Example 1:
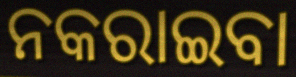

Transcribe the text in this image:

ନକରାଇବା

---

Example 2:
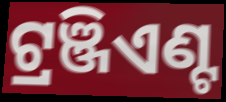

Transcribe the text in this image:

ଟ୍ରଞ୍ଜିଏଣ୍ଟ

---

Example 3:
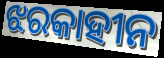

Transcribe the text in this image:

ଝରକାହୀନ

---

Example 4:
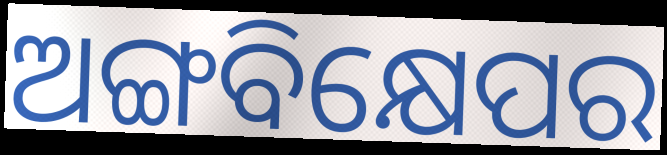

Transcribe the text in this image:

ଅଙ୍ଗବିକ୍ଷେପର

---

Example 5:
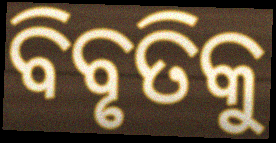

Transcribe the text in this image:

ବିବୃତିକୁ